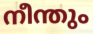
നീന്തും